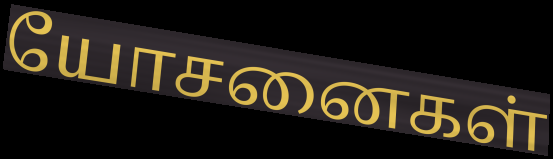
யோசனைகள்